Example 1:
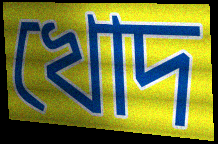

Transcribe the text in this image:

খোদ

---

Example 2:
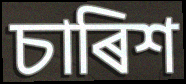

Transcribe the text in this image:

চাৰিশ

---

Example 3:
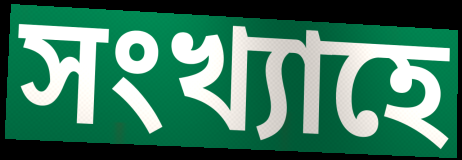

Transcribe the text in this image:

সংখ্যাহে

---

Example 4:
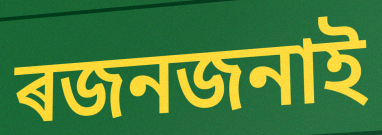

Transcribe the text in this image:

ৰজনজনাই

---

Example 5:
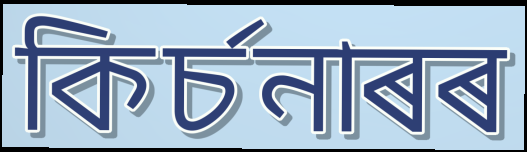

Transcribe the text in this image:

কিৰ্চনাৰৰ